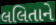
લલિતાને